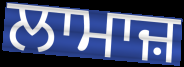
ਲਾਮਾਜ਼